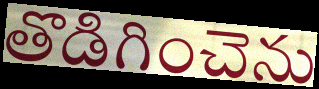
తొడిగించెను